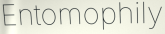
Entomophily